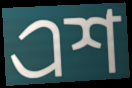
এশ